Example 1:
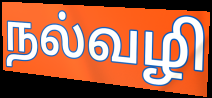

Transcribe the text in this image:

நல்வழி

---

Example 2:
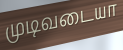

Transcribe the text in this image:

முடிவடையா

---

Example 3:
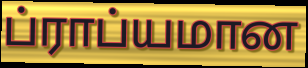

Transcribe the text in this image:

ப்ராப்யமான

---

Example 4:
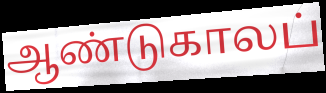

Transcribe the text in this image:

ஆண்டுகாலப்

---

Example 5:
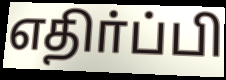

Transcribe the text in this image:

எதிர்ப்பி